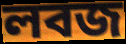
লবজ